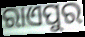
ରାଏପୁର